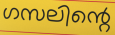
ഗസലിന്റെ